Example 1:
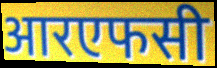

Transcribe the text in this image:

आरएफसी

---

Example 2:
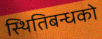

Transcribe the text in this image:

स्थितिबन्धको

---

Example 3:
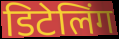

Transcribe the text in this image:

डिटेलिंग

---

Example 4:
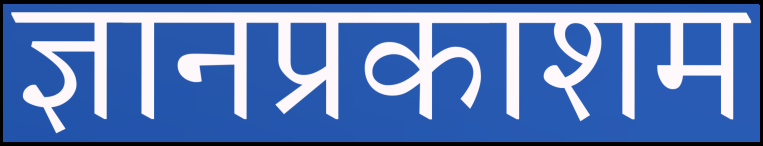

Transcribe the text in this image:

ज्ञानप्रकाशम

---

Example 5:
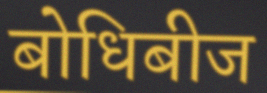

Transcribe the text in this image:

बोधिबीज